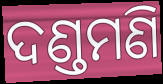
ଦଣ୍ଡମଣି